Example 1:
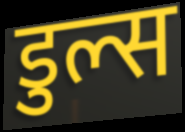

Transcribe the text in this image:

डुल्स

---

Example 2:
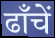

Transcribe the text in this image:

ढाँचें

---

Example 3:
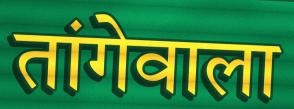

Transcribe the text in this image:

तांगेवाला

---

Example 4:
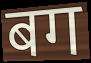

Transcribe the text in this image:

बग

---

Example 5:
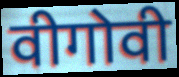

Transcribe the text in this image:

वीगोवी